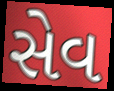
સેવ